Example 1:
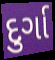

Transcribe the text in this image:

દુર્ગા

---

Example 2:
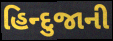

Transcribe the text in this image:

હિન્દુજાની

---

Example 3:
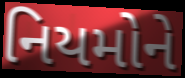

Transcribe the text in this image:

નિયમોને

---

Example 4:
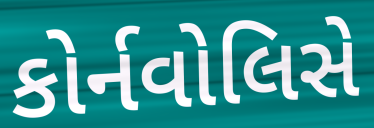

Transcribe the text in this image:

કોર્નવોલિસે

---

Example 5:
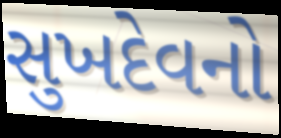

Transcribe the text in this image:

સુખદેવનો